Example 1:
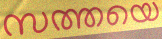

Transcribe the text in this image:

സത്തയെ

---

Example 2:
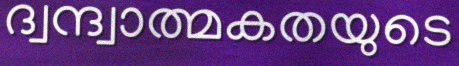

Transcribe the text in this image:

ദ്വന്ദ്വാത്മകതയുടെ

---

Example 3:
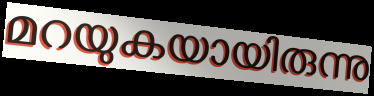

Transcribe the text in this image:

മറയുകയായിരുന്നു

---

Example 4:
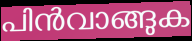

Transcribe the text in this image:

പിൻവാങ്ങുക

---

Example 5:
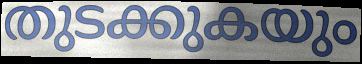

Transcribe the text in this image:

തുടക്കുകയും